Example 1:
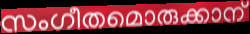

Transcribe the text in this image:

സംഗീതമൊരുക്കാന്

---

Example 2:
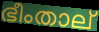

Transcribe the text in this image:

ഭീംതാല്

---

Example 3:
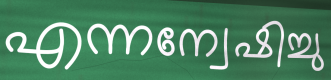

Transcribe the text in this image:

എന്നന്വേഷിച്ചു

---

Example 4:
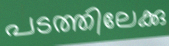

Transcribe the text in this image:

പടത്തിലേക്കു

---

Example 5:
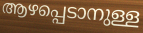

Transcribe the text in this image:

ആഴപ്പെടാനുള്ള